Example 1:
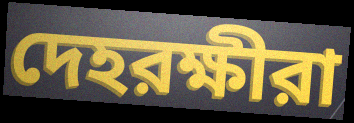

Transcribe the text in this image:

দেহরক্ষীরা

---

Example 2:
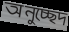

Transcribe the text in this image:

অনুচ্ছেদ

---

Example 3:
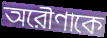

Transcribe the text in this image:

অরৌণাকে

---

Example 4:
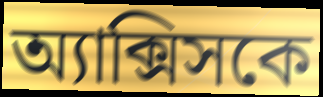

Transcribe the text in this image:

অ্যাক্সিসকে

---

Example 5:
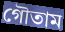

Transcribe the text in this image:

গৌতাম